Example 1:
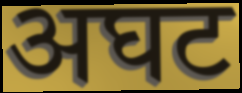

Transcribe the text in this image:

अघट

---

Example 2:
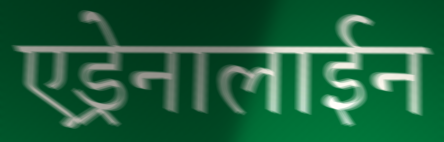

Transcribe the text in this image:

एड्रेनालाईन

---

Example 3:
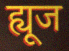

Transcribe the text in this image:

ह्यूज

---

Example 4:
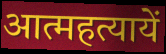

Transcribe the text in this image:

आत्महत्यायें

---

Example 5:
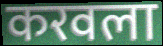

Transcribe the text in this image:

करवला